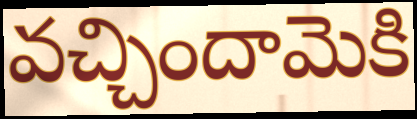
వచ్చిందామెకి